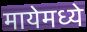
मायेमध्ये